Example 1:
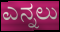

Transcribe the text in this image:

ಎನ್ನಲು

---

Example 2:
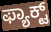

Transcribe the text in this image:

ಫ್ಯಾಕ್ಟ್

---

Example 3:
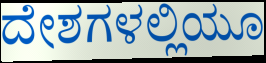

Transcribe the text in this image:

ದೇಶಗಳಲ್ಲಿಯೂ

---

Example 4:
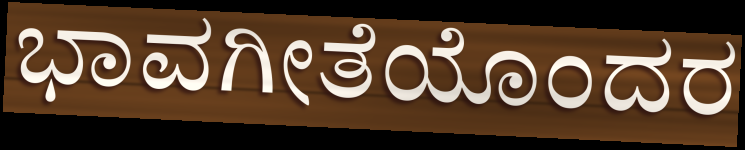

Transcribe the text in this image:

ಭಾವಗೀತೆಯೊಂದರ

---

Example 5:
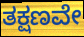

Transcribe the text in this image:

ತಕ್ಷಣವೇ